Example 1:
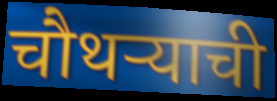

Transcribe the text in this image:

चौथऱ्याची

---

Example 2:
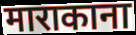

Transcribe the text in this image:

माराकाना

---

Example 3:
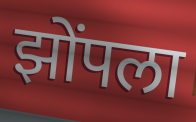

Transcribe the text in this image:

झोंपला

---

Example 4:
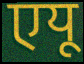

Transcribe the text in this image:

एयू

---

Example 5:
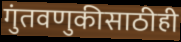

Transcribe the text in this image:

गुंतवणुकीसाठीही